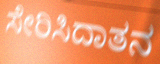
ಸೇರಿಸಿದಾತನ